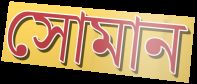
সোমান